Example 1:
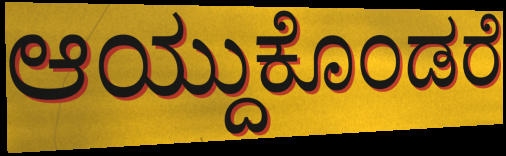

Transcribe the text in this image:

ಆಯ್ದುಕೊಂಡರೆ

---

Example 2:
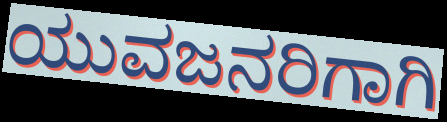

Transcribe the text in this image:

ಯುವಜನರಿಗಾಗಿ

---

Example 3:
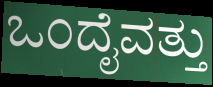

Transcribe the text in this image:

ಒಂದೈವತ್ತು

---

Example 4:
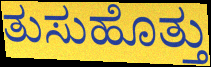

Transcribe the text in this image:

ತುಸುಹೊತ್ತು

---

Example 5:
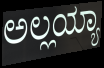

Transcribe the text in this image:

ಅಲ್ಲಯ್ಯಾ